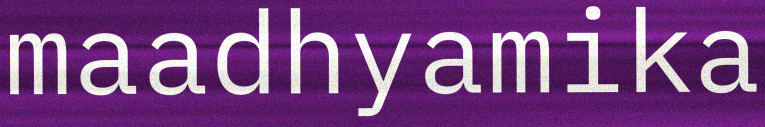
maadhyamika